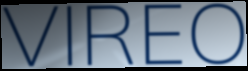
VIREO